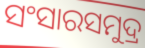
ସଂସାରସମୁଦ୍ର